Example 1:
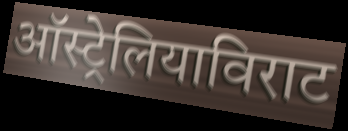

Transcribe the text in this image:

ऑस्ट्रेलियाविराट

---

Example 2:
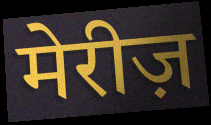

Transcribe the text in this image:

मेरीज़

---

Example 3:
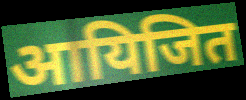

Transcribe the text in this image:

आयिजित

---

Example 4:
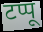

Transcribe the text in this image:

टप्पू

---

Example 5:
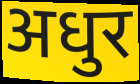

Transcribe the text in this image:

अधुर